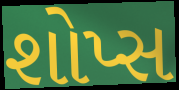
શોપ્સ